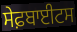
ਸੇਫ਼ਬਾਈਟਸ